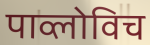
पाव्लोविच